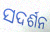
ସଦର୍ଶନ